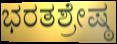
ಭರತಶ್ರೇಷ್ಠ